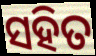
ସହିତ